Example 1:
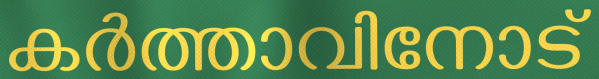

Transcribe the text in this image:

കർത്താവിനോട്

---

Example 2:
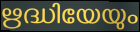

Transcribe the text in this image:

ഋദ്ധിയേയും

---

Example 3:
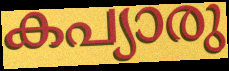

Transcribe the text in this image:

കപ്യാരു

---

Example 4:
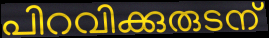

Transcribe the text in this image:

പിറവിക്കുരുടന്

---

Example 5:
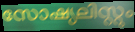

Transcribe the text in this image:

സോഷ്യലിസ്റ്റും